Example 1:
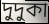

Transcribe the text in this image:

দুদুকা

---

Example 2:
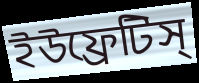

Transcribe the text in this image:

ইউফ্রেটিস্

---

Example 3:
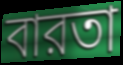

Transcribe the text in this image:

বারতা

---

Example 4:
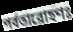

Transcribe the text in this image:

পর্বতারোহণঃ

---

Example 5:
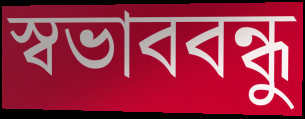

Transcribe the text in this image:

স্বভাববন্ধু